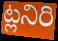
ట్లనిరి